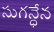
సుగన్ధేన